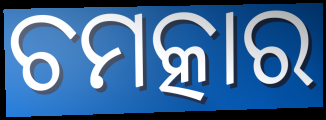
ଚମତ୍କାର